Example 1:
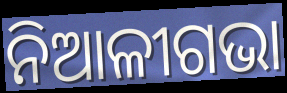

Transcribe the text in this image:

ନିଆଳୀଗଭା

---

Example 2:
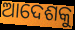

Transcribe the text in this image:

ଆଦେଶକୁ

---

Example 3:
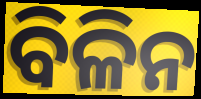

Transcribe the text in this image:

ବିଳିନ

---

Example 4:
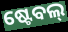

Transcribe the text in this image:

ଷ୍ଟେବଲ୍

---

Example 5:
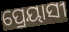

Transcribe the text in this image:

ପ୍ରେୟାସୀ